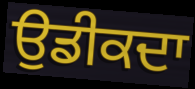
ਉਡੀਕਦਾ